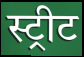
स्ट्रीट